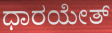
ಧಾರಯೇತ್